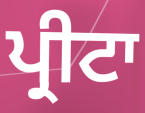
ਪ੍ਰੀਟਾ